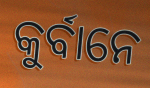
କୁର୍ବାନେ